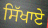
ਸਿੱਖਾਏ